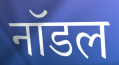
नॉडल